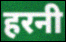
हरनी